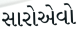
સારોએવો